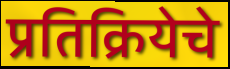
प्रतिक्रियेचे